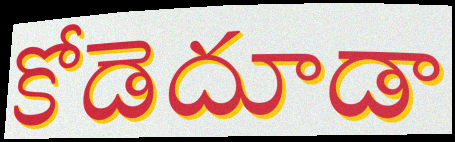
కోడెదూడా